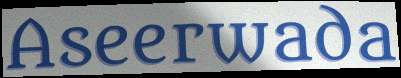
Aseerwada